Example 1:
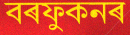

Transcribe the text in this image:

বৰফুকনৰ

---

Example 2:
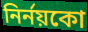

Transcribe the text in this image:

নিৰ্নয়কো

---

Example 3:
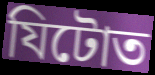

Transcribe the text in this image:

যিটোত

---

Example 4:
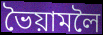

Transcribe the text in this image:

ভৈয়ামলৈ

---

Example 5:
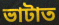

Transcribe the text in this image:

ভাটাত